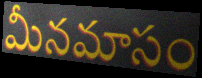
మీనమాసం